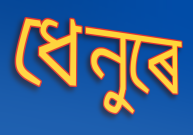
ধেনুৰে